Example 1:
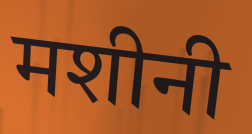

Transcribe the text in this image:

मशीनी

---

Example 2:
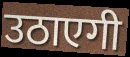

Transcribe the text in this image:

उठाएगी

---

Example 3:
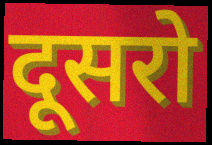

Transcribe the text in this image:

दूसरो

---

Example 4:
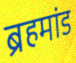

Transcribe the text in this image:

ब्रहमांड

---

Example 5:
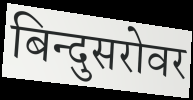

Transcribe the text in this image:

बिन्दुसरोवर